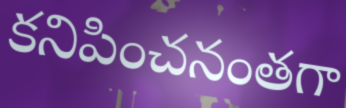
కనిపించనంతగా